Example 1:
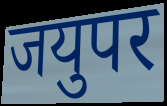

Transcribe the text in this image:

जयुपर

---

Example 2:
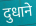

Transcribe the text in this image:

दुधाने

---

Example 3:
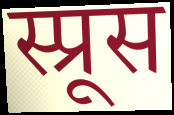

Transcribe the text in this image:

स्प्रूस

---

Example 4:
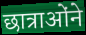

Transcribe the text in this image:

छात्राओंने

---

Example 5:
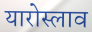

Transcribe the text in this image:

यारोस्लाव